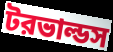
টরভাল্ডস